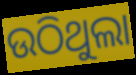
ଉଠିଥୁଲା